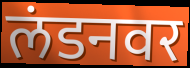
लंडनवर